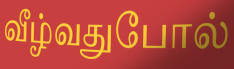
வீழ்வதுபோல்